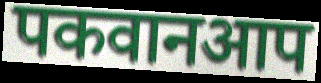
पकवानआप